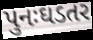
પુનઃઘડતર